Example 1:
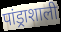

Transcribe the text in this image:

पांड्राशाली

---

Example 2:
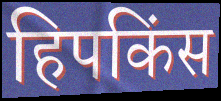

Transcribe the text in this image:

हिपकिंस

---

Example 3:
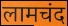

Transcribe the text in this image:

लामचंद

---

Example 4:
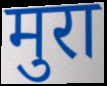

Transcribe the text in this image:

मुरा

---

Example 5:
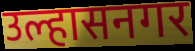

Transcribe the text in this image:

उल्हासनगर